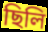
ছিলি